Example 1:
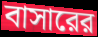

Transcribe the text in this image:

বাসারের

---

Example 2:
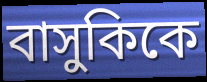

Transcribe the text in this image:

বাসুকিকে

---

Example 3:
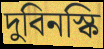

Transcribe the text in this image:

দুবিনস্কি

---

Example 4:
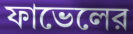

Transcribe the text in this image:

ফাভেলের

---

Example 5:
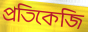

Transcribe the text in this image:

প্রতিকেজি